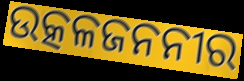
ଉତ୍କଳଜନନୀର